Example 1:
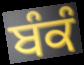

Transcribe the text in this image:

ਬੰਕੰ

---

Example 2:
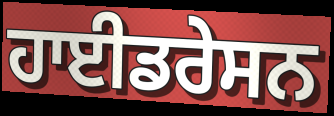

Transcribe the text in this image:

ਹਾਈਡਰੇਸਨ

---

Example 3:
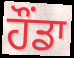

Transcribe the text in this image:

ਹੌਂਡਾ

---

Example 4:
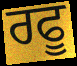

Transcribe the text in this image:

ਰਫੂ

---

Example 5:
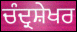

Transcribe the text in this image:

ਚੰਦ੍ਰਸ਼ੇਖਰ